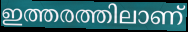
ഇത്തരത്തിലാണ്